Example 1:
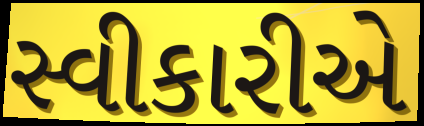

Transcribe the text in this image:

સ્વીકારીએ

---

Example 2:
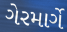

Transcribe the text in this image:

ગેરમાર્ગે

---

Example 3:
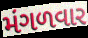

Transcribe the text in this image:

મંગળવાર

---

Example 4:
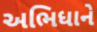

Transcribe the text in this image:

અભિધાને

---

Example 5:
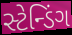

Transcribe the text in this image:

સ્ટેન્ડિંગ